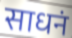
साधनं